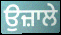
ਉਜ਼ਾਲੇ